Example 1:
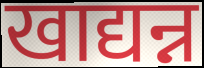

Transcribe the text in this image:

खाद्यन्न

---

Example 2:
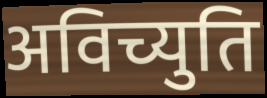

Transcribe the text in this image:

अविच्युति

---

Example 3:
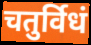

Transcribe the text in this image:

चतुर्विधं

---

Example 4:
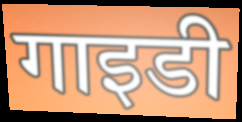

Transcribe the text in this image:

गाइडी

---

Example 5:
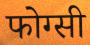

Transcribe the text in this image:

फोग्सी